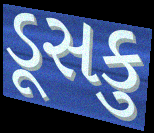
ડૂસકુ